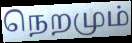
நெறமும்